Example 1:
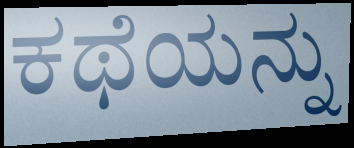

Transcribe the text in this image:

ಕಥೆಯನ್ನು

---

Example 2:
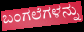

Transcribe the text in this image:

ಬಂಗಲೆಗಳನ್ನು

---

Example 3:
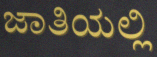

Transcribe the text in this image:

ಜಾತಿಯಲ್ಲಿ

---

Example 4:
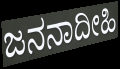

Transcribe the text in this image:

ಜನನಾದೀಹಿ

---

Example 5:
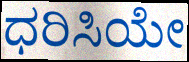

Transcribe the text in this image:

ಧರಿಸಿಯೇ